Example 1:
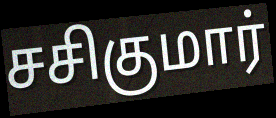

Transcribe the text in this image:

சசிகுமார்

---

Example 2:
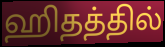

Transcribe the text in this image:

ஹிதத்தில்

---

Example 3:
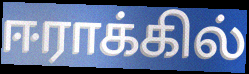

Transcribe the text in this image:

ஈராக்கில்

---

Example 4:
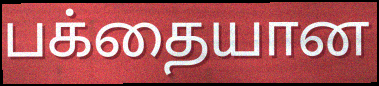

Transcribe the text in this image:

பக்தையான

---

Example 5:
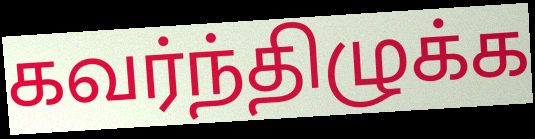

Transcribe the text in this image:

கவர்ந்திழுக்க